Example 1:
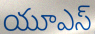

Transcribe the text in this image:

యూఎస్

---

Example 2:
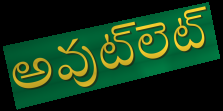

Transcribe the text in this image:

అవుట్‌లెట్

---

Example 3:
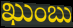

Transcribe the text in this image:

ఖుంబు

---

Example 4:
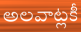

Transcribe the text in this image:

అలవాట్లకీ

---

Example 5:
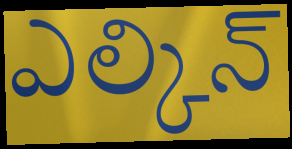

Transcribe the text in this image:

ఎల్కిన్